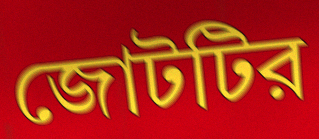
জোটটির